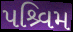
પશ્ર્વિમ